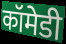
कॉमेडी